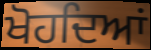
ਖੋਹਦਿਆਂ